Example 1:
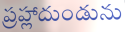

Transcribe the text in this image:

ప్రహ్లాదుండును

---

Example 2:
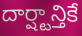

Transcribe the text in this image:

దార్ష్టాన్తికే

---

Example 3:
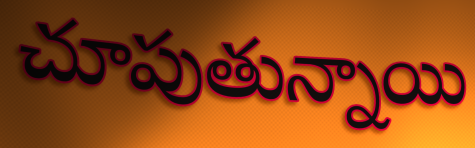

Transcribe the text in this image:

చూపుతున్నాయి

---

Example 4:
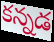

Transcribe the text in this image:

కన్నడ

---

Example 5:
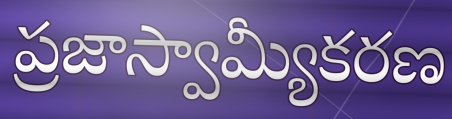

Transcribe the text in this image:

ప్రజాస్వామ్యీకరణ